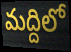
మద్దిలో